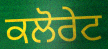
ਕਲੋਰੇਟ